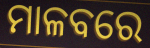
ମାଳବରେ